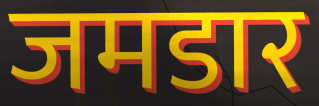
जमडार